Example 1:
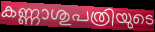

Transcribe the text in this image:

കണ്ണാശുപത്രിയുടെ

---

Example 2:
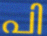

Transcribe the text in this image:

പി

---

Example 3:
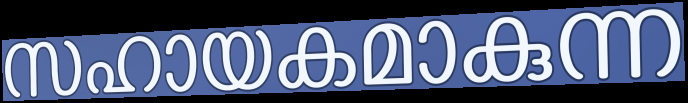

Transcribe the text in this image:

സഹായകമാകുന്ന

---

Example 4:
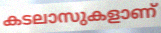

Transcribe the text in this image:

കടലാസുകളാണ്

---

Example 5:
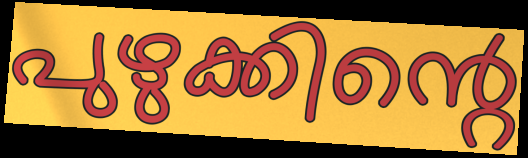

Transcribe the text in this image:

പുഴുക്കിന്റെ